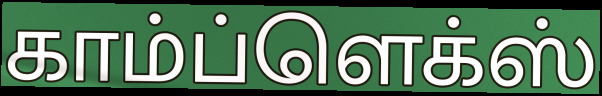
காம்ப்ளெக்ஸ்